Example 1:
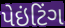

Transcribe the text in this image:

પેઇંટિંગ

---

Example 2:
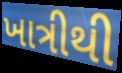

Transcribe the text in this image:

ખાત્રીથી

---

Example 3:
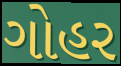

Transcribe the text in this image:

ગોહર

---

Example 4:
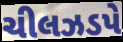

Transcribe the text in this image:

ચીલઝડપે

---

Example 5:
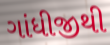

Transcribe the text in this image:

ગાંધીજીથી